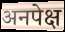
अनपेक्ष